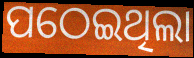
ପଠେଇଥିଲା